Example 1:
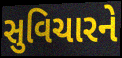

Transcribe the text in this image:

સુવિચારને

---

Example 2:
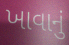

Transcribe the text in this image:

ખાવાનું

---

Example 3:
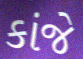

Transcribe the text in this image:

કાંજે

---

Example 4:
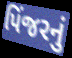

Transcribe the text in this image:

પિંજરનું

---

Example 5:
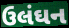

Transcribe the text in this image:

ઉલંઘન